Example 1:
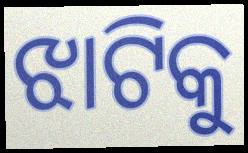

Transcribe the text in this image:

ଝାଟିକୁ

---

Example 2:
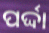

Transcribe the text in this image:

ପର୍ଦ୍ଦା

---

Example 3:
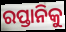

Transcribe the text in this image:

ରପ୍ତାନିକୁ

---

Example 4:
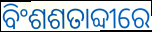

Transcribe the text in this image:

ବିଂଶଶତାବ୍ଦୀରେ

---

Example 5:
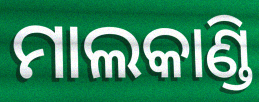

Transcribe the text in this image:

ମାଲକାଣ୍ଡି